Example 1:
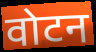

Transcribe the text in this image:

वोटन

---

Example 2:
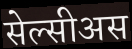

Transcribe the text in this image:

सेल्सीअस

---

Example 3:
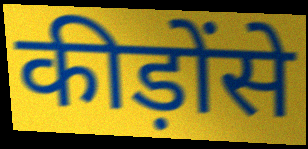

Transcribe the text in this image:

कीड़ोंसे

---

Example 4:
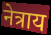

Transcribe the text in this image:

नेत्राय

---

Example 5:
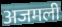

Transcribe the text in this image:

अजमली